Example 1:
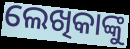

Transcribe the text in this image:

ଲେଖିକାଙ୍କୁ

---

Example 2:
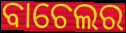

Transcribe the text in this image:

ବାଚେଲର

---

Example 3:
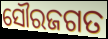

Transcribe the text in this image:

ସୌରଜଗତ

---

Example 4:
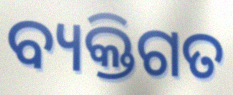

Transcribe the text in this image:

ବ୍ୟକ୍ତିଗତ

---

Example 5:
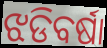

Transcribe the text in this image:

ଝଡିବର୍ଷା